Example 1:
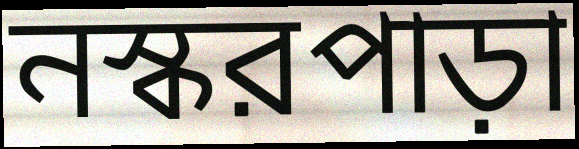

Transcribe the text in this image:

নস্করপাড়া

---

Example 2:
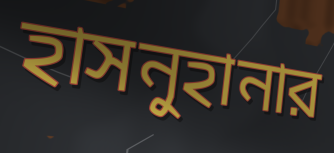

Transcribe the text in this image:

হাসনুহানার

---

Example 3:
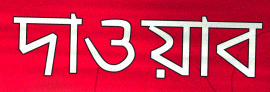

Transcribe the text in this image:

দাওয়াব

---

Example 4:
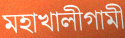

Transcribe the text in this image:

মহাখালীগামী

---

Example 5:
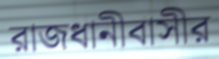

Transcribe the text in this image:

রাজধানীবাসীর